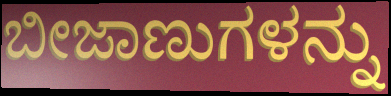
ಬೀಜಾಣುಗಳನ್ನು